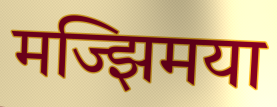
मज्झिमया